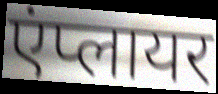
एंप्लायर